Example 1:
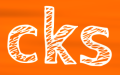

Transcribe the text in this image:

cks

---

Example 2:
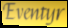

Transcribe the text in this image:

Eventyr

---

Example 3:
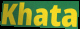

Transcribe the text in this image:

Khata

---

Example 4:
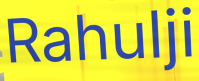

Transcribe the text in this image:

Rahulji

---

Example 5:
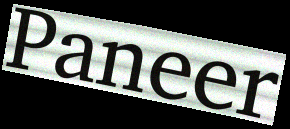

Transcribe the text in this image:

Paneer